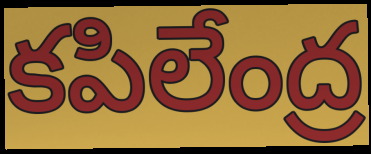
కపిలేంద్ర